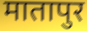
मातापुर